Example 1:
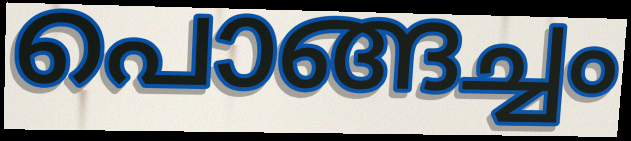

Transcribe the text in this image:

പൊങ്ങച്ചം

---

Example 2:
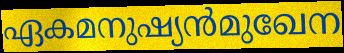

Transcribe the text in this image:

ഏകമനുഷ്യൻമുഖേന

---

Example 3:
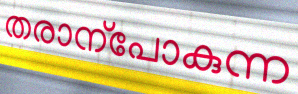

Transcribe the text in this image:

തരാന്പോകുന്ന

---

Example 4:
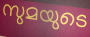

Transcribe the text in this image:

സുമയുടെ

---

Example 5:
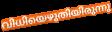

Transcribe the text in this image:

വിധിയെഴുതിയിരുന്നു